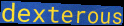
dexterous